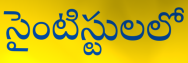
సైంటిస్టులలో